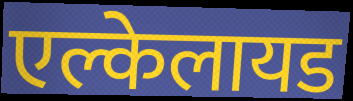
एल्केलायड